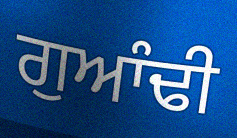
ਗੁਆੰਢੀ